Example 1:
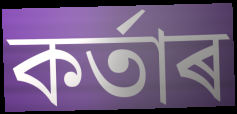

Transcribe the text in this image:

কৰ্তাৰ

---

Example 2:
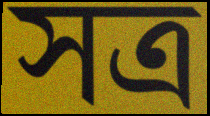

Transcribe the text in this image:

সত্ৰ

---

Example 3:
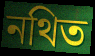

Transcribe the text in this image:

নথিত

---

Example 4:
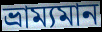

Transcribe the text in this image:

ভ্ৰাম্যমান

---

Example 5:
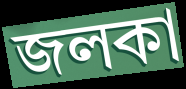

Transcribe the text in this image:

জলকা